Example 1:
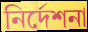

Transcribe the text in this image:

নির্দেশনা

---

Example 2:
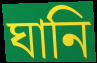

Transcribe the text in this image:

ঘানি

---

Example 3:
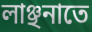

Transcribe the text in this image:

লাঞ্ছনাতে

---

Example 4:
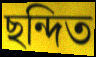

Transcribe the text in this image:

ছন্দিত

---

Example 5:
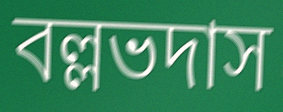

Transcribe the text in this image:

বল্লভদাস